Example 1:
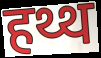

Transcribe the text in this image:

हथ्थ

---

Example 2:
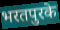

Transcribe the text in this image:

भरतपुरके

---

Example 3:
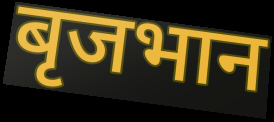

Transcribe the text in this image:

बृजभान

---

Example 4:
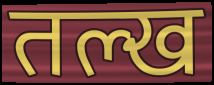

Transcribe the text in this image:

तल्‍ख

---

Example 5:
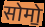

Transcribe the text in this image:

सोमो॒